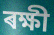
ৰক্ষী